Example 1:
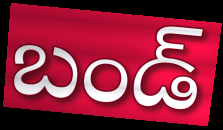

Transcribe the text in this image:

బండ్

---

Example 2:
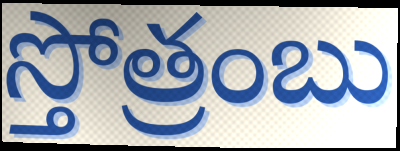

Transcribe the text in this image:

స్తోత్రంబు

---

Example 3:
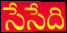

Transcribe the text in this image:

సేసేది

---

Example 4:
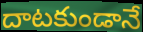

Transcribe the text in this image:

దాటకుండానే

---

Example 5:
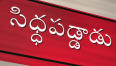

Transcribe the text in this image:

సిధ్ధపడ్డాడు